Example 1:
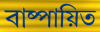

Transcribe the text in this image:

বাষ্পায়িত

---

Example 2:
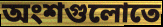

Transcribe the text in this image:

অংশগুলোতে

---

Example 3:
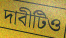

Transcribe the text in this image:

দাবীটিও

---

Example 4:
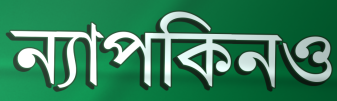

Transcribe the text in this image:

ন্যাপকিনও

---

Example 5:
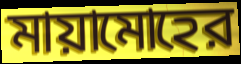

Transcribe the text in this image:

মায়ামোহের